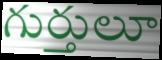
గుర్తులూ